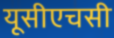
यूसीएचसी